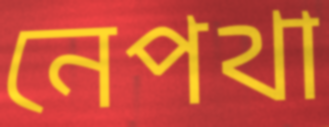
নেপথা